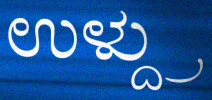
ಉಳ್ದ್ರು